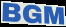
BGM